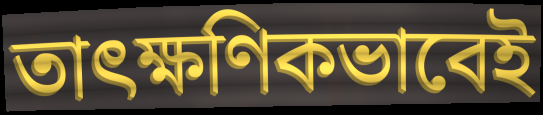
তাৎক্ষণিকভাবেই